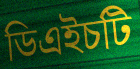
ডিএইচটি